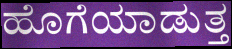
ಹೊಗೆಯಾಡುತ್ತ